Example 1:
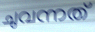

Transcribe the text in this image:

ചുവന്നത്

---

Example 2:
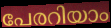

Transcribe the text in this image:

പേരറിയാം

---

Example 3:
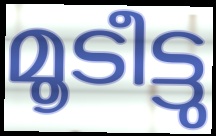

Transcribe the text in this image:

മൂടീട്ടു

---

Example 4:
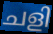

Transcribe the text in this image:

ചളി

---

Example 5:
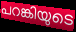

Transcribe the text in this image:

പറങ്കിയുടെ